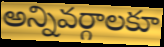
అన్నివర్గాలకూ